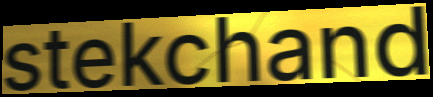
stekchand